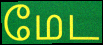
மேட